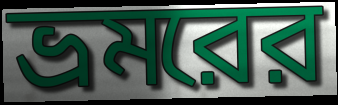
ভ্রমরের